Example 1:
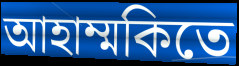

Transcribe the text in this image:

আহাম্মকিতে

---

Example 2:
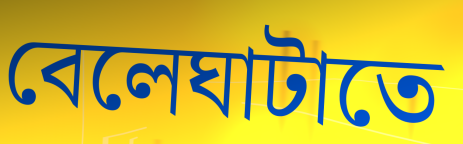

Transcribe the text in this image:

বেলেঘাটাতে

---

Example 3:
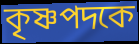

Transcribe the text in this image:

কৃষ্ণপদকে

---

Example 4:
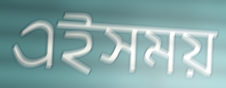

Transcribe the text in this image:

এইসময়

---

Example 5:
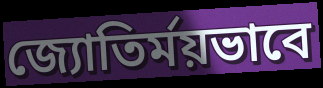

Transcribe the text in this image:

জ্যোতির্ময়ভাবে